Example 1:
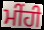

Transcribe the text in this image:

ਮੀਂਹੀ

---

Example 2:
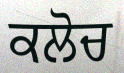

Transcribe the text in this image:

ਕਲੋਚ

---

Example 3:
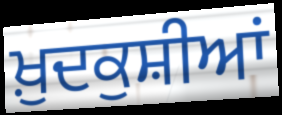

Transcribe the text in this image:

ਖ਼ੁਦਕੁਸ਼ੀਆਂ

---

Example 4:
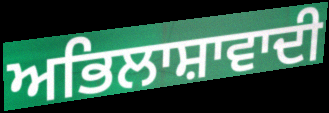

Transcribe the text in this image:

ਅਭਿਲਾਸ਼ਾਵਾਦੀ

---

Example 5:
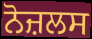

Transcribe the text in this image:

ਨੋਜ਼ਲਸ